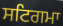
ਸਟਿਗਮਾ